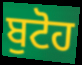
ਬੁਟੋਹ